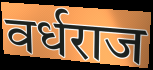
वर्धराज